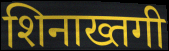
शिनाख्तगी